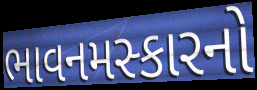
ભાવનમસ્કારનો